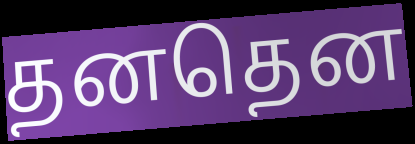
தனதென